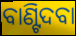
ବାଣ୍ଟିଦବା